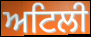
ਅਟਿਲੀ